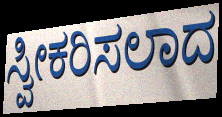
ಸ್ವೀಕರಿಸಲಾದ